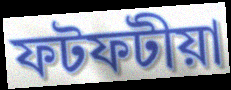
ফটফটীয়া